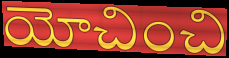
యోచించి